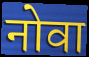
नोवा